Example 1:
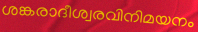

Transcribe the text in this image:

ശങ്കരാദീശ്വരവിനിമയനം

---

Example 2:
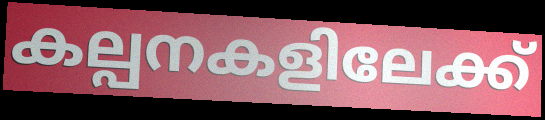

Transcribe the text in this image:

കല്പനകളിലേക്ക്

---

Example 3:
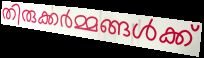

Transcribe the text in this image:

തിരുക്കർമ്മങ്ങൾക്ക്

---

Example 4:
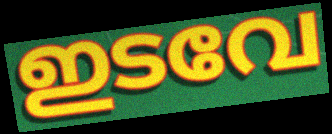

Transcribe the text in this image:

ഇടവേ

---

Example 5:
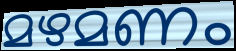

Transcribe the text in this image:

മഴമണം